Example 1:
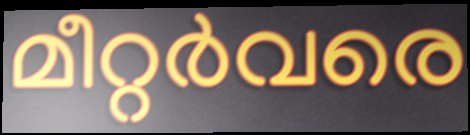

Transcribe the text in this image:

മീറ്റർവരെ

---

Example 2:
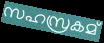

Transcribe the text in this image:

സഹസ്രകമ്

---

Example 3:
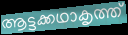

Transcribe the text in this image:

ആട്ടക്കഥാകൃത്ത്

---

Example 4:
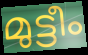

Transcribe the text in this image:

മുട്ടീം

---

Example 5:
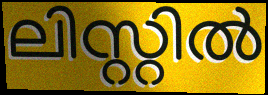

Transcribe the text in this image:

ലിസ്റ്റിൽ